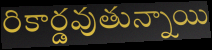
రికార్డవుతున్నాయి